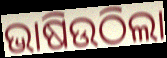
ଭାଷିଉଠିଲା